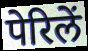
पेरिलें